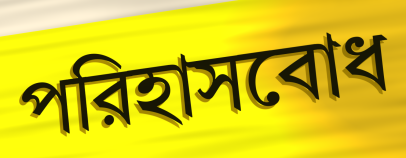
পরিহাসবোধ